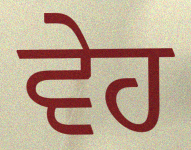
ਵੇਹ